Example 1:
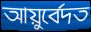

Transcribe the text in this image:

আয়ুৰ্বেদত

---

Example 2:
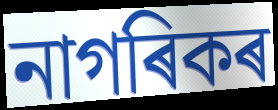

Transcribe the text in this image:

নাগৰিকৰ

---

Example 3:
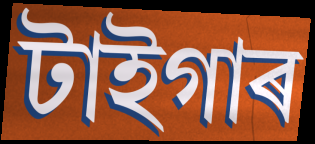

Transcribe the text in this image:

টাইগাৰ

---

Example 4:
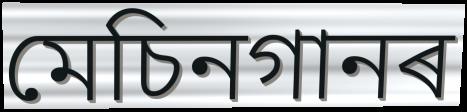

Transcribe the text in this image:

মেচিনগানৰ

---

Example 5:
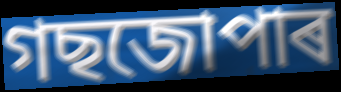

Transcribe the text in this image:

গছজোপাৰ